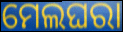
ମେଲଘରା